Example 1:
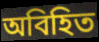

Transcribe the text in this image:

অবিহিত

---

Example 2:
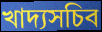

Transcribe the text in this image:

খাদ্যসচিব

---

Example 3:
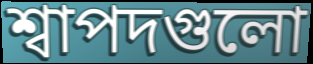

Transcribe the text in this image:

শ্বাপদগুলো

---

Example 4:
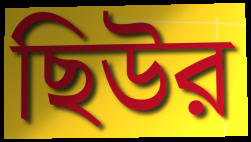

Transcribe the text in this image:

ছিউর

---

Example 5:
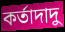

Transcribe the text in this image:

কর্তাদাদু